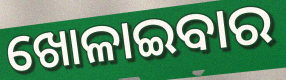
ଖୋଳାଇବାର